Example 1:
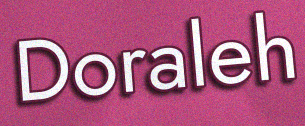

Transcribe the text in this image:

Doraleh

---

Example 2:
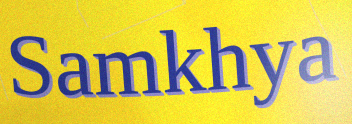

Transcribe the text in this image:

Samkhya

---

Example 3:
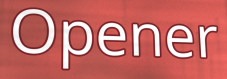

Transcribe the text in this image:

Opener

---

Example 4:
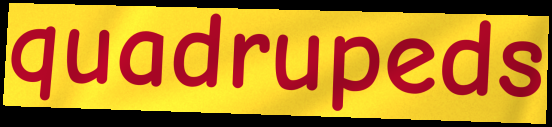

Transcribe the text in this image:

quadrupeds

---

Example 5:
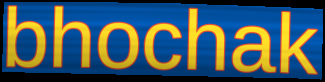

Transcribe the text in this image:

bhochak